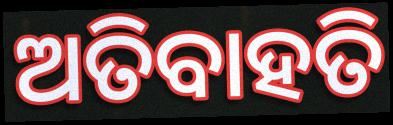
ଅତିବାହତି